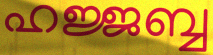
ഹജ്ജബ്ബ